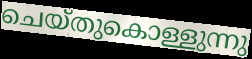
ചെയ്തുകൊള്ളുന്നു